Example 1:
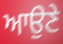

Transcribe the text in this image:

ਆਉਣੇ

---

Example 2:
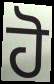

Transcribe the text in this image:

ਹੋ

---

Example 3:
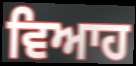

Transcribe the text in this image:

ਵਿਆਹ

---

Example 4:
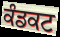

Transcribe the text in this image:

ਕੰਡਕਟ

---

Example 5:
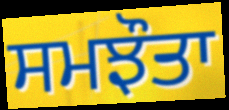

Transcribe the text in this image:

ਸਮਝੌਤਾ